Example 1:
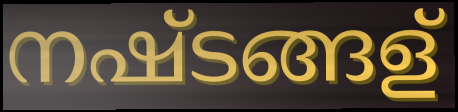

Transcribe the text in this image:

നഷ്ടങ്ങള്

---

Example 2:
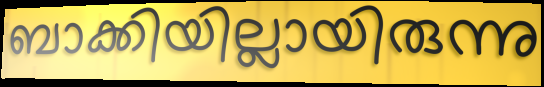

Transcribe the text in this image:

ബാക്കിയില്ലായിരുന്നു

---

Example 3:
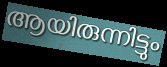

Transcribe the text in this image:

ആയിരുന്നിട്ടും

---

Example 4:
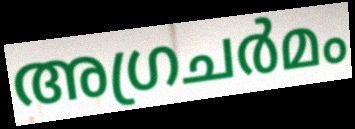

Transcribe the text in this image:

അഗ്രചർമം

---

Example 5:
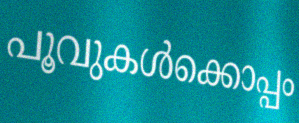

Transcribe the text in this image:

പൂവുകൾക്കൊപ്പം